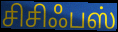
சிசிஃபஸ்